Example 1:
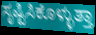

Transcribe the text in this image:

ಸೃಷ್ಟಿಸಿಕೊಳ್ಳುತ್ತಾ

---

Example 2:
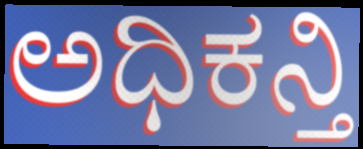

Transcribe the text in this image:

ಅಧಿಕನ್ತಿ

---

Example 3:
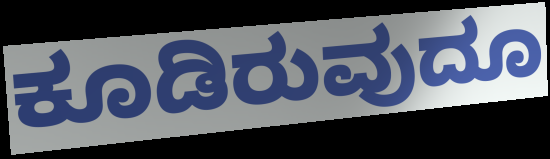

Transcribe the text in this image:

ಕೂಡಿರುವುದೂ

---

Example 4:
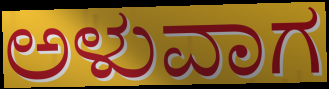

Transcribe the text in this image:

ಅಳುವಾಗ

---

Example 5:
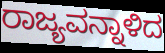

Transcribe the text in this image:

ರಾಜ್ಯವನ್ನಾಳಿದ